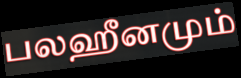
பலஹீனமும்